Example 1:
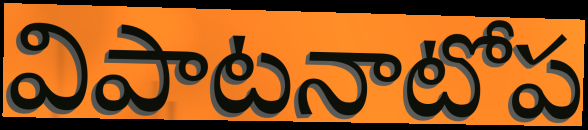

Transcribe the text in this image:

విపాటనాటోప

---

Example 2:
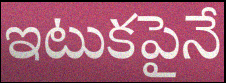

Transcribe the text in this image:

ఇటుకపైనే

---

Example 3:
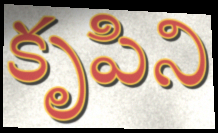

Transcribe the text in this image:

కృపిని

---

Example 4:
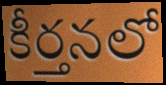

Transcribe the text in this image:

కీర్తనలో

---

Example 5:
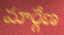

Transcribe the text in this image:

మార్గేణ